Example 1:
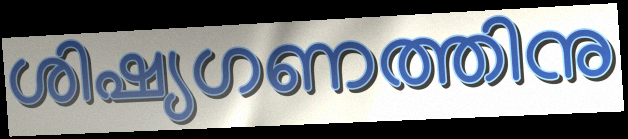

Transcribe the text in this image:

ശിഷ്യഗണത്തിനു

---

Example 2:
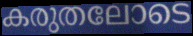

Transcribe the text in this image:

കരുതലോടെ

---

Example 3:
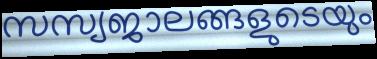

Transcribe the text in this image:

സസ്യജാലങ്ങളുടെയും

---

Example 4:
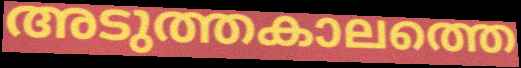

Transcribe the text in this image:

അടുത്തകാലത്തെ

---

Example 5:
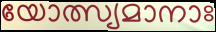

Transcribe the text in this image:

യോത്സ്യമാനാഃ